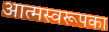
आत्मस्वरूपका